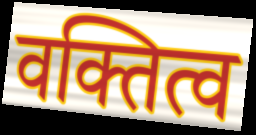
वक्तित्व